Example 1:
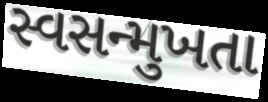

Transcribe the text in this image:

સ્વસન્મુખતા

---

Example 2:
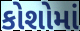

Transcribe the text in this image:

કોશોમાં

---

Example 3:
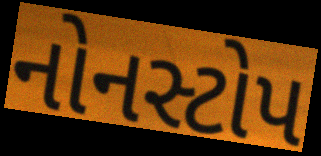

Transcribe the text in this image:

નોનસ્ટોપ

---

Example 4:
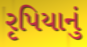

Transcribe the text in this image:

રૃપિયાનું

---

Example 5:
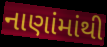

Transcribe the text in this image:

નાણાંમાંથી